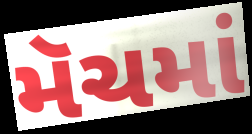
મૅચમાં